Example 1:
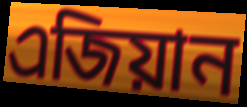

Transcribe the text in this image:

এজিয়ান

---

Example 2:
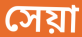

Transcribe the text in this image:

সেয়া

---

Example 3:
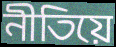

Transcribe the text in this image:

নীতিয়ে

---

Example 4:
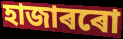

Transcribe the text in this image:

হাজাৰৰো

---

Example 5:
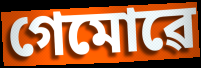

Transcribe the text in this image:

গেমোৱে